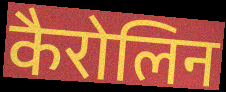
कैरोलिन